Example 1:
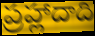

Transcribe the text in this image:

ప్రహ్లాదాది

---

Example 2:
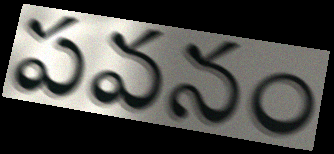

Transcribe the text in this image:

పవనం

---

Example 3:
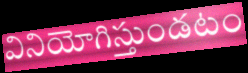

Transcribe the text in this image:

వినియోగిస్తుండటం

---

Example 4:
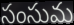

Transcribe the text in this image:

సంసుమ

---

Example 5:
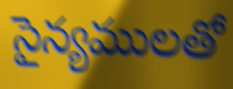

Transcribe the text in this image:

సైన్యములతో